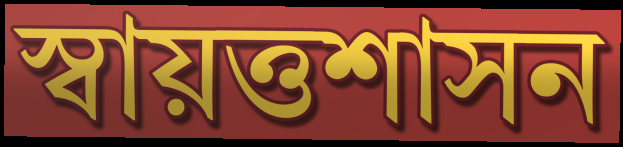
স্বায়ত্তশাসন